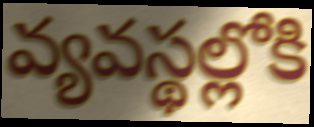
వ్యవస్థల్లోకి